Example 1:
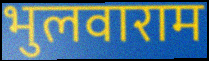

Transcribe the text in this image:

भुलवाराम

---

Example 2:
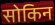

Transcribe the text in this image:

सोकिन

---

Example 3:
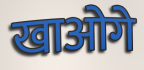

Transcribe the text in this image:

खाओगे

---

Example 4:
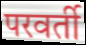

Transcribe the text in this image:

परवर्ती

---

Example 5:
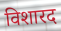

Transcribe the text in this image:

विशारद